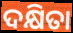
ଦକ୍ଷିତା